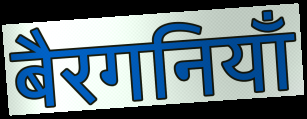
बैरगनियाँ